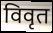
विवृत